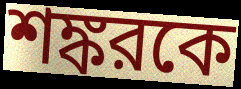
শঙ্করকে